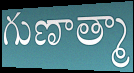
గుణాత్మా